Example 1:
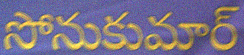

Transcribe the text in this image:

సోనుకుమార్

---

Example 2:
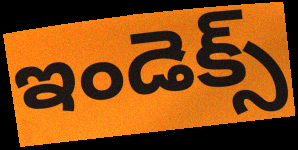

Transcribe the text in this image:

ఇండెక్స్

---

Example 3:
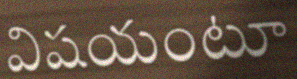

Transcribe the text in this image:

విషయంటూ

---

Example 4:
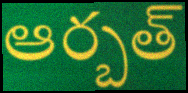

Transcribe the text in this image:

ఆర్బత్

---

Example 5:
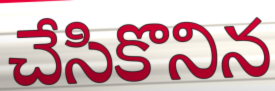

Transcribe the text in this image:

చేసికొనిన